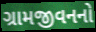
ગ્રામજીવનનો